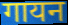
गायन